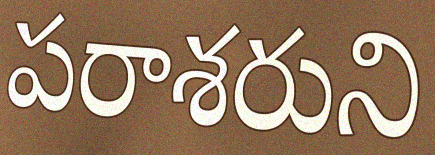
పరాశరుని